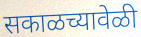
सकाळच्यावेळी